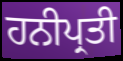
ਹਨੀਪ੍ਰਤੀ